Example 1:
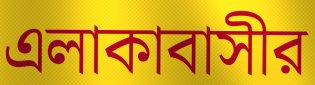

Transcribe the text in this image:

এলাকাবাসীর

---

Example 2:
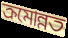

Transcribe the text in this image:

ক্রমোন্নত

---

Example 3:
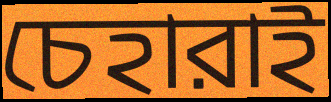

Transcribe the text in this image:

চেহারাই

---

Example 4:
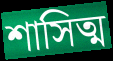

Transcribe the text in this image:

শাসিত্ম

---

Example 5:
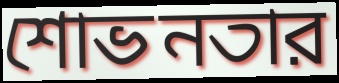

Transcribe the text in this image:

শোভনতার